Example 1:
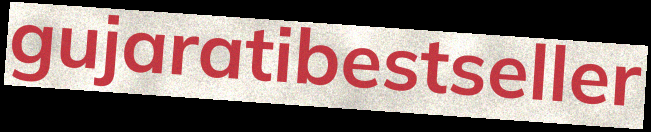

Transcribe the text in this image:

gujaratibestseller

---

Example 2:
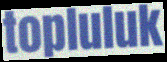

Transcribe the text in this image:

topluluk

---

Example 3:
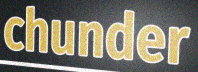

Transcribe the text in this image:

chunder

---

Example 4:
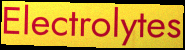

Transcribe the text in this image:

Electrolytes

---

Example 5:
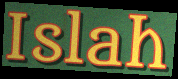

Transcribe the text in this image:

Islah